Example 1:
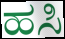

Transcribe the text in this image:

ಹಸಿ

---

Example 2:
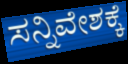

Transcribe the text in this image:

ಸನ್ನಿವೇಶಕ್ಕೆ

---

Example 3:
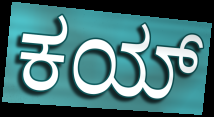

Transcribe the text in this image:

ಕಯ್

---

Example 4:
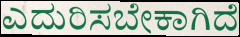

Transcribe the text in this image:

ಎದುರಿಸಬೇಕಾಗಿದೆ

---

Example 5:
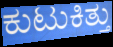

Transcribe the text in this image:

ಕುಟುಕಿತ್ತು